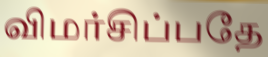
விமர்சிப்பதே